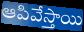
ఆపివేస్తాయి